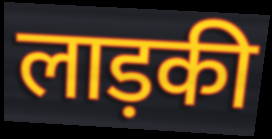
लाड़की